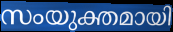
സംയുക്തമായി